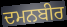
ਦਮਨਬੀਰ